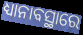
ଧ୍ୟାନାବସ୍ଥାରେ